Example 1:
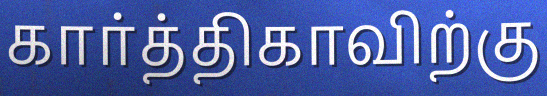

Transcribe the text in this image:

கார்த்திகாவிற்கு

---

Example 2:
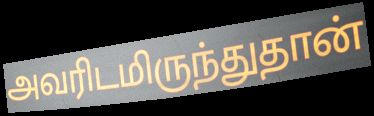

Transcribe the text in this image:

அவரிடமிருந்துதான்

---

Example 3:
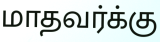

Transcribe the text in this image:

மாதவர்க்கு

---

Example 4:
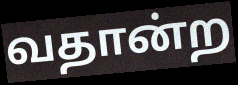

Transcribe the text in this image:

வதான்ற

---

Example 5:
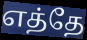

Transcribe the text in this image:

எத்தே